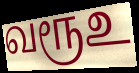
வரூஉ